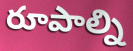
రూపాల్ని